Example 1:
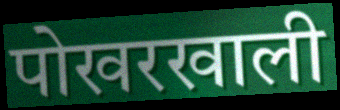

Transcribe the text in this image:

पोखरखाली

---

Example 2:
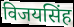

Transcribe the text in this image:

विजयसिंह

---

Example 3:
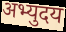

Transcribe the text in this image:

अभ्युदय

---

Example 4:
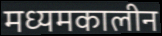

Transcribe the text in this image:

मध्यमकालीन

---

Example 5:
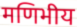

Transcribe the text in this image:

मणिभीय